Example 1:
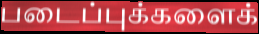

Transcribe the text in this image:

படைப்புக்களைக்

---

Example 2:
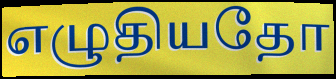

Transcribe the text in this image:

எழுதியதோ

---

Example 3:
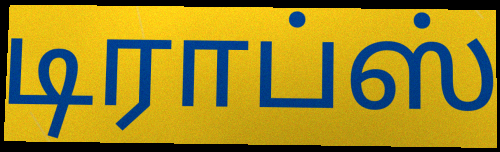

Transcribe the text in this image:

டிராப்ஸ்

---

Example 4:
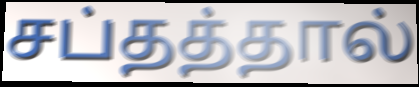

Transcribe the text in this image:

சப்தத்தால்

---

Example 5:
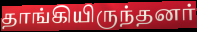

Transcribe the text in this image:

தாங்கியிருந்தனர்